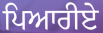
ਪਿਆਰੀਏ